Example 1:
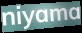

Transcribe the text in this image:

niyama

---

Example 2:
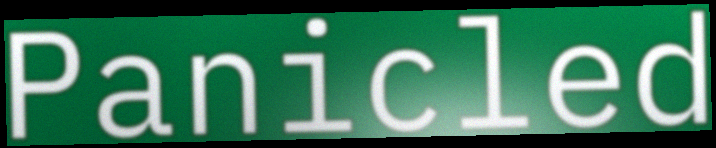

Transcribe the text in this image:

Panicled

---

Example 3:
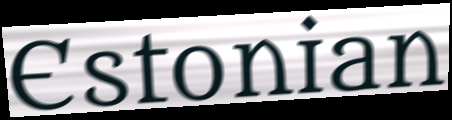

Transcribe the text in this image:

Estonian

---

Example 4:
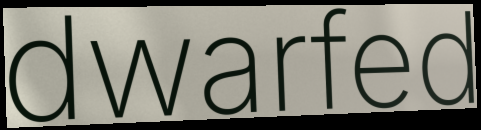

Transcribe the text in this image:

dwarfed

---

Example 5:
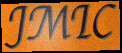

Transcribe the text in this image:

JMIC